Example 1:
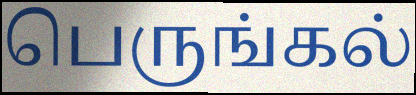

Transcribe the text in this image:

பெருங்கல்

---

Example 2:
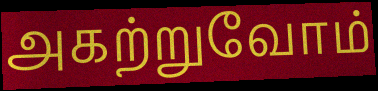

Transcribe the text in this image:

அகற்றுவோம்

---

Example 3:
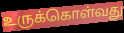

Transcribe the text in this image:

உருக்கொள்வது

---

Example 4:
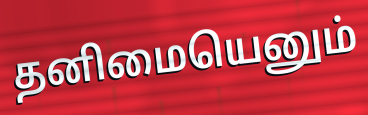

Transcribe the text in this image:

தனிமையெனும்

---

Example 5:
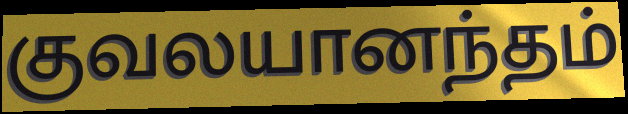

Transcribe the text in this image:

குவலயானந்தம்